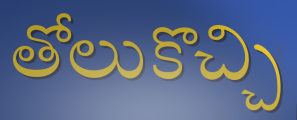
తోలుకొచ్చి